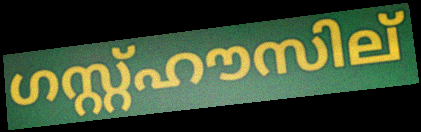
ഗസ്റ്റ്ഹൗസില്